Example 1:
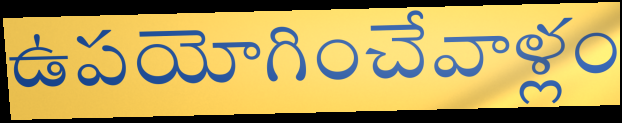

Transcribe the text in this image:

ఉపయోగించేవాళ్లం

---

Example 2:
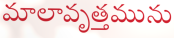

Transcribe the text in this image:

మాలావృత్తమును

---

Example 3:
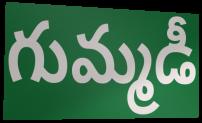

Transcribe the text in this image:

గుమ్మడీ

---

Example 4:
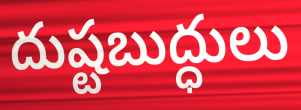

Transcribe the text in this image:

దుష్టబుద్ధులు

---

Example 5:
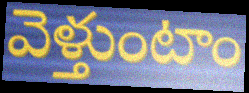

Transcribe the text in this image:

వెళ్తుంటాం